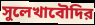
সুলেখাবৌদির